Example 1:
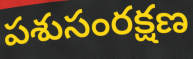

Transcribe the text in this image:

పశుసంరక్షణ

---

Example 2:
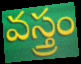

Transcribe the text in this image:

వస్త్రం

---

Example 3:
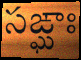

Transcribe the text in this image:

సఙ్ఘాః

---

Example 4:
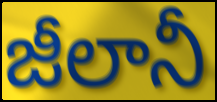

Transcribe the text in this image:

జీలానీ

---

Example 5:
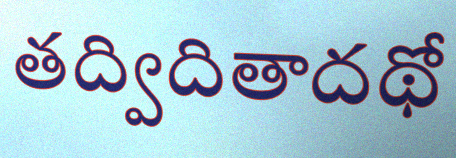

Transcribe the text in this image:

తద్విదితాదథో